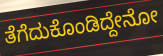
ತೆಗೆದುಕೊಂಡಿದ್ದೇನೋ